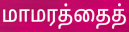
மாமரத்தைத்